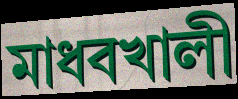
মাধবখালী